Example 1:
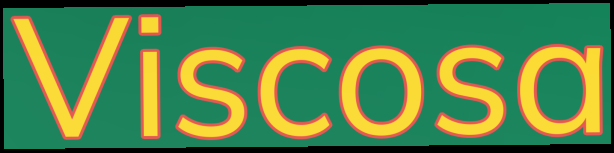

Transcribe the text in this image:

Viscosa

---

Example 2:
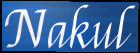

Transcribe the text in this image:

Nakul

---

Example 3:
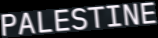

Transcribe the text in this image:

PALESTINE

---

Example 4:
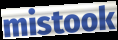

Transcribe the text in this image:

mistook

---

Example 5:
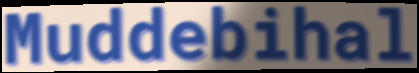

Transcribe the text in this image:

Muddebihal